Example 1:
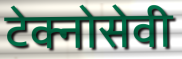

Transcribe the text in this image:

टेक्नोसेवी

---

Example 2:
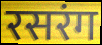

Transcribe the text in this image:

रसरंग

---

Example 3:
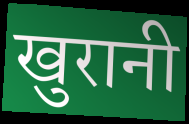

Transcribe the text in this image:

खुरानी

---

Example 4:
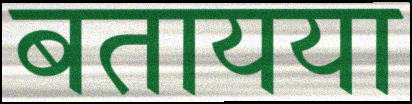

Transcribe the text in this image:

बतायया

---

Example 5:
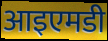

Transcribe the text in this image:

आइएमडी